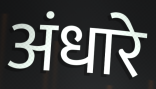
अंधारे